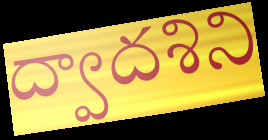
ద్వాదశిని